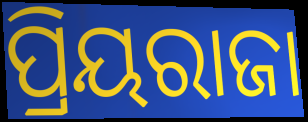
ପ୍ରିୟରାଜା